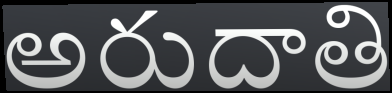
అరుదాతి